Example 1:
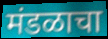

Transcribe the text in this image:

मंडळाचा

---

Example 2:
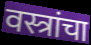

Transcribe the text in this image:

वस्त्रांचा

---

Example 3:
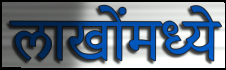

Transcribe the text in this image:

लाखोंमध्ये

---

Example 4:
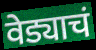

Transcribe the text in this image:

वेड्याचं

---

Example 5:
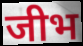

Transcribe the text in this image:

जीभ